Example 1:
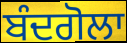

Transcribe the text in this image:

ਬੰਦਗੋਲਾ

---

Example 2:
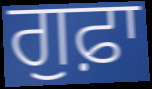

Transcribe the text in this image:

ਗੁਫ਼ਾ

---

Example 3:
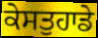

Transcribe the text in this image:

ਕੇਸਤੁਹਾਡੇ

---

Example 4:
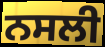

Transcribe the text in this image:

ਨਸਲੀ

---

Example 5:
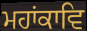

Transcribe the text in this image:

ਮਹਾਂਕਾਵਿ